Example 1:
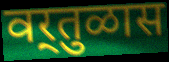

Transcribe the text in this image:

वर्तुळास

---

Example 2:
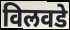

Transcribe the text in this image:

विलवडे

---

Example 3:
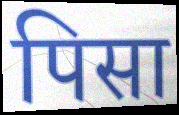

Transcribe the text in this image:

पिसा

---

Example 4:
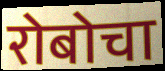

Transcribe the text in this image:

रोबोचा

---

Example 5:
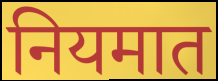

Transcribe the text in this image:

नियमात